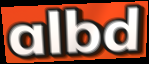
albd